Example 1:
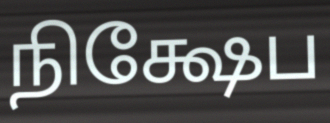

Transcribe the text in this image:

நிக்ஷேப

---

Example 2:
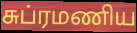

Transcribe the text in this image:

சுப்ரமணிய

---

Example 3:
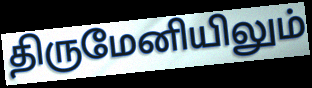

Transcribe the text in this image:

திருமேனியிலும்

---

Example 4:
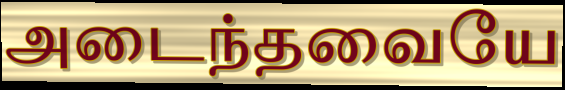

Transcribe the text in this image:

அடைந்தவையே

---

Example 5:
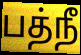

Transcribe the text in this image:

பத்நீ